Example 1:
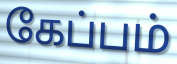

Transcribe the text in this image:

கேப்பம்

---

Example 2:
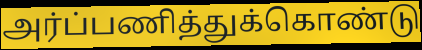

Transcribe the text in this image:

அர்ப்பணித்துக்கொண்டு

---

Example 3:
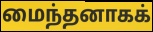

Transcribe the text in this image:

மைந்தனாகக்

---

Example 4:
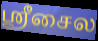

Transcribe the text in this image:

ஸ்ரீசைல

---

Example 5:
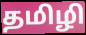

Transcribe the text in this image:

தமிழி